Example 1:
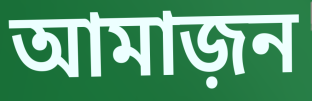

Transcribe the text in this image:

আমাজ়ন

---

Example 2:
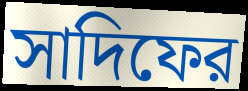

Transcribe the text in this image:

সাদিফের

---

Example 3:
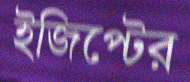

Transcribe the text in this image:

ইজিপ্টের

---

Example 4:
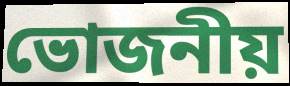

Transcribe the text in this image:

ভোজনীয়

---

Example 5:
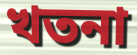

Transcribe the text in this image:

খতনা